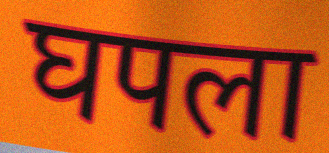
घपला